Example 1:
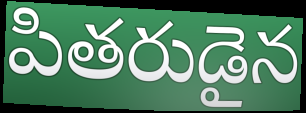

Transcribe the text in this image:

పితరుడైన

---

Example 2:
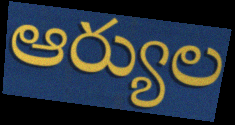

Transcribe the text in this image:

ఆర్యుల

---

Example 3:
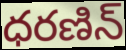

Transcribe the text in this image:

ధరణిన్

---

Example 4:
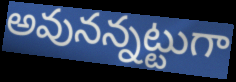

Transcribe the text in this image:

అవునన్నట్టుగా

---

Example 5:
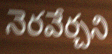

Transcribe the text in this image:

నెరవేర్చని